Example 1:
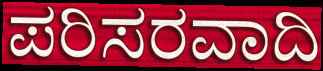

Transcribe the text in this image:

ಪರಿಸರವಾದಿ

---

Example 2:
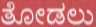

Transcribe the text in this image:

ತೋಡಲು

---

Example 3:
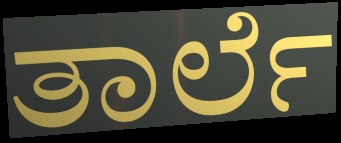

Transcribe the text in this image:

ತಾರ್ಲೆ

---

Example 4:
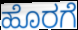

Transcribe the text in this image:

ಹೊರಗೆ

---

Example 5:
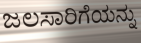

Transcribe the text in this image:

ಜಲಸಾರಿಗೆಯನ್ನು